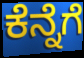
ಕೆನ್ನೆಗೆ